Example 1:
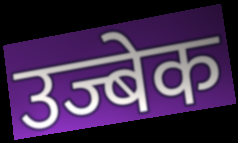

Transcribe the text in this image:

उज्बेक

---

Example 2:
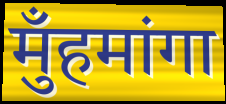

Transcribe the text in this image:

मुँहमांगा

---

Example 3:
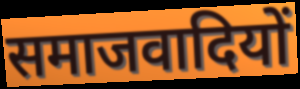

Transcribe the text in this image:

समाजवादियों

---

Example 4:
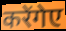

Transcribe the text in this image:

करेंगेए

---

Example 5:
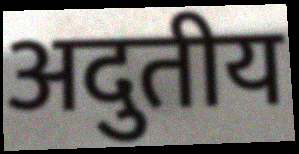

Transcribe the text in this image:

अदुतीय